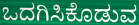
ಒದಗಿಸಿಕೊಡುವ